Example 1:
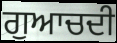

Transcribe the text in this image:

ਗੁਆਚਦੀ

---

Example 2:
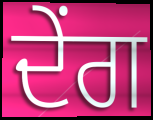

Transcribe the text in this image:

ਦੇਂਗ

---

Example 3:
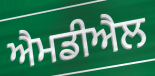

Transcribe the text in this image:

ਐਮਡੀਐਲ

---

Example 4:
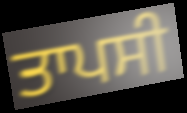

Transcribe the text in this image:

ਤਾਪਸੀ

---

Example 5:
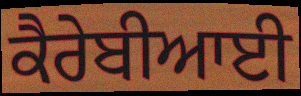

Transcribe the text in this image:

ਕੈਰੇਬੀਆਈ